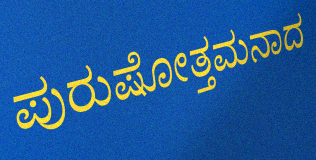
ಪುರುಷೋತ್ತಮನಾದ